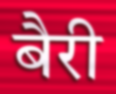
बैरी